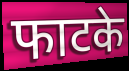
फाटके